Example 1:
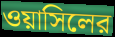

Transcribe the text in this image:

ওয়াসিলের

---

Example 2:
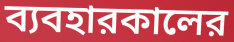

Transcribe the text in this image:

ব্যবহারকালের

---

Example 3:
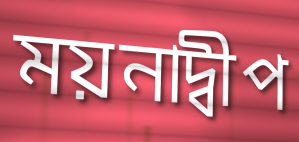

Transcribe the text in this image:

ময়নাদ্বীপ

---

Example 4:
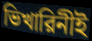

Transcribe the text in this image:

ভিখারিনীই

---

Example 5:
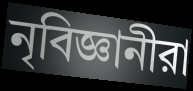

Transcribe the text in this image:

নৃবিজ্ঞানীরা